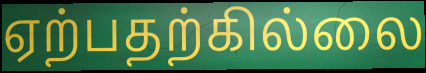
ஏற்பதற்கில்லை